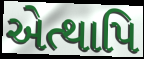
એત્થાપિ